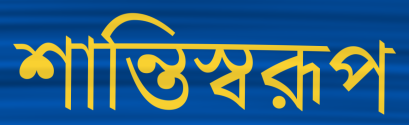
শান্তিস্বরূপ